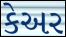
કેઅર